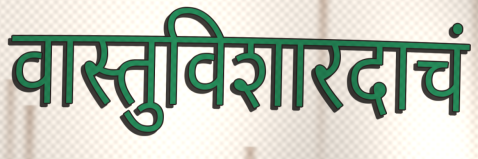
वास्तुविशारदाचं